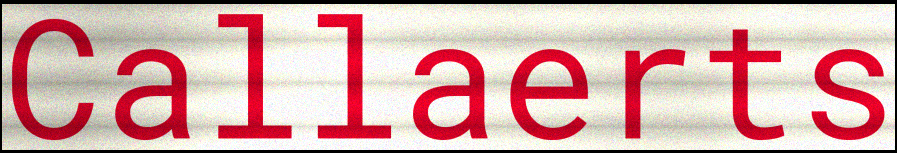
Callaerts